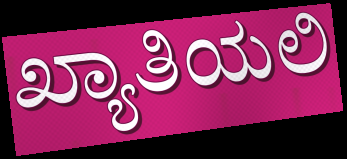
ಖ್ಯಾತಿಯಲಿ